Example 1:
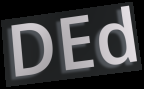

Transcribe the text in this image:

DEd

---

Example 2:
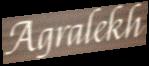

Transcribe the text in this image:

Agralekh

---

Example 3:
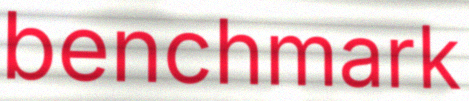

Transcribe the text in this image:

benchmark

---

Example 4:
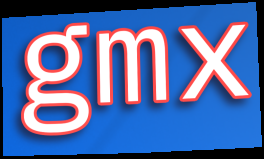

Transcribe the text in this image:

gmx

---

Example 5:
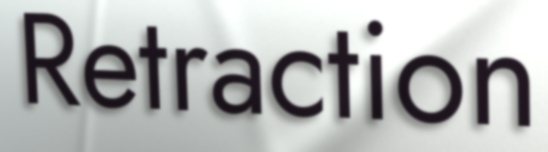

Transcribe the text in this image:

Retraction